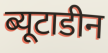
ब्यूटाडीन